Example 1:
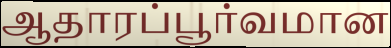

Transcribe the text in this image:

ஆதாரப்பூர்வமான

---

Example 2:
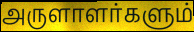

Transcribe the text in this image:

அருளாளர்களும்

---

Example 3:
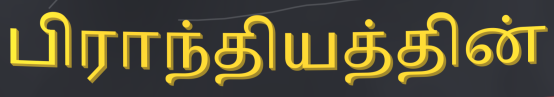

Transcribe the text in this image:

பிராந்தியத்தின்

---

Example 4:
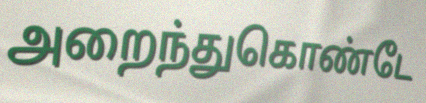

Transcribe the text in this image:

அறைந்துகொண்டே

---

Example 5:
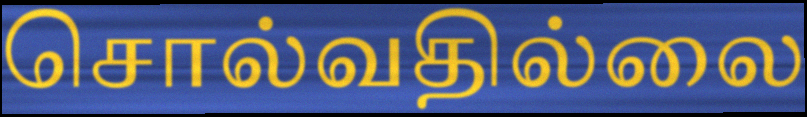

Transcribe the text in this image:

சொல்வதில்லை